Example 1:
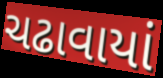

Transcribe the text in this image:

ચઢાવાયાં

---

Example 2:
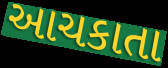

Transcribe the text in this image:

આચકાતા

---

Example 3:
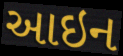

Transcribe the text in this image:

આઇન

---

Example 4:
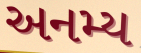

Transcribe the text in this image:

અનમ્ય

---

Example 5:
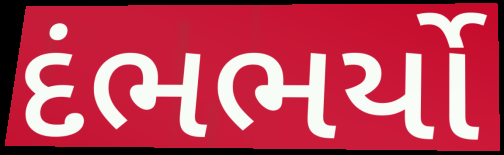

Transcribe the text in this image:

દંભભર્યો